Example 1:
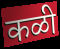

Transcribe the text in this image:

कळी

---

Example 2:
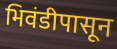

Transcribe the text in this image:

भिवंडीपासून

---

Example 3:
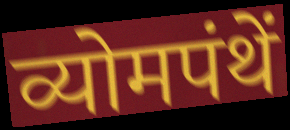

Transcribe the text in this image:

व्योमपंथें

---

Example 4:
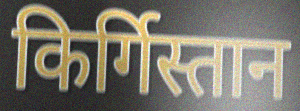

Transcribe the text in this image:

किर्गिस्तान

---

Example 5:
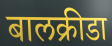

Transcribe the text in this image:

बालक्रीडा